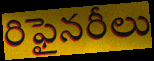
రిఫైనరీలు